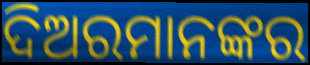
ଦିଅରମାନଙ୍କର